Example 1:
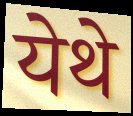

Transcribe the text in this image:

येथे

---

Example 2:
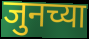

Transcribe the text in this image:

जुनच्या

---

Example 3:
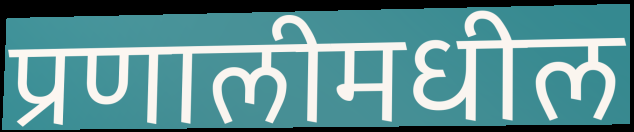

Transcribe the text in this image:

प्रणालीमधील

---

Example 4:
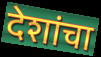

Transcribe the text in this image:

देशांचा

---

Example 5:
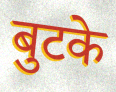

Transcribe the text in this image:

बुटके